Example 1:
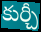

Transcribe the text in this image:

కుర్చీ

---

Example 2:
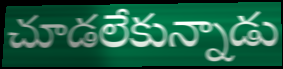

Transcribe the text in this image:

చూడలేకున్నాడు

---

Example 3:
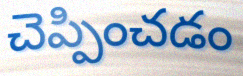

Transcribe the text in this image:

చెప్పించడం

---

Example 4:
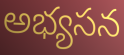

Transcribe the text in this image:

అభ్యసన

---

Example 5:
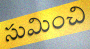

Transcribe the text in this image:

సుమించి